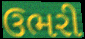
ઉભરી